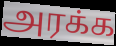
அரக்க